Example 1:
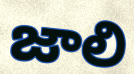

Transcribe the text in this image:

జాలి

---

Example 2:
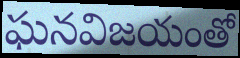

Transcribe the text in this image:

ఘనవిజయంతో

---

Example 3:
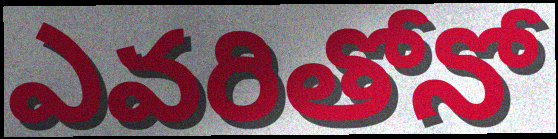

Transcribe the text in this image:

ఎవరితోనో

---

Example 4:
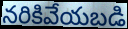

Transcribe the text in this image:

నరికివేయబడి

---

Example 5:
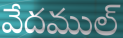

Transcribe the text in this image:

వేదముల్